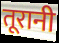
तूरानी